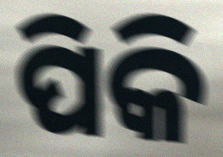
ପିକି